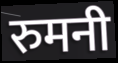
रुमनी